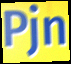
Pjn